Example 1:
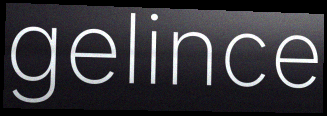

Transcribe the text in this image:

gelince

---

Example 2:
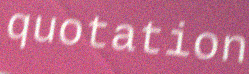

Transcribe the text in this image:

quotation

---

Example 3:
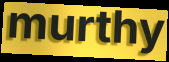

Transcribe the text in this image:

murthy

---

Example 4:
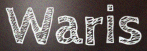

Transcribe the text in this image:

Waris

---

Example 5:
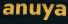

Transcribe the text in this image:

anuya